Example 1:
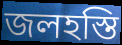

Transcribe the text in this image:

জলহস্তি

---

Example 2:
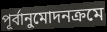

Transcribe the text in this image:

পূর্বানুমোদনক্রমে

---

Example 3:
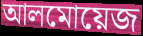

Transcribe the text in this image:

আলমোয়েজ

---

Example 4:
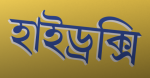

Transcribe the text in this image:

হাইড্রক্সি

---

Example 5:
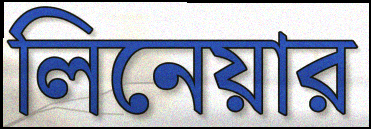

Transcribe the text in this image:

লিনেয়ার